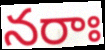
నరాః